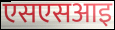
एसएसआइ